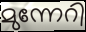
മുന്നേറി